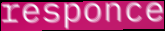
responce